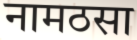
नामठसा